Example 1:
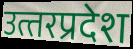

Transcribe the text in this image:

उत्‍तरप्रदेश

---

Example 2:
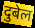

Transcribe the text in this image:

दुबेल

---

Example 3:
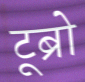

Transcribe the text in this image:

टूब्रो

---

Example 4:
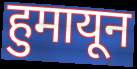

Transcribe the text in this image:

हुमायून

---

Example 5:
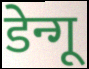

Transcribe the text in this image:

डेन्गू